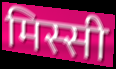
मिस्सी